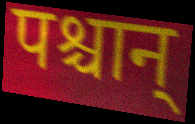
पश्चान्